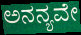
ಅನನ್ಯವೇ